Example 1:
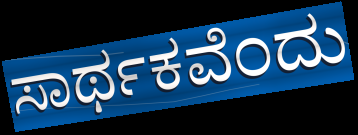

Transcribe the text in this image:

ಸಾರ್ಥಕವೆಂದು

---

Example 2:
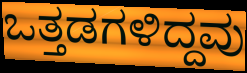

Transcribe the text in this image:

ಒತ್ತಡಗಳಿದ್ದವು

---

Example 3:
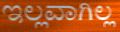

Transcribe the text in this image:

ಇಲ್ಲವಾಗಿಲ್ಲ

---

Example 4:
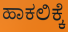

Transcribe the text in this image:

ಹಾಕಲಿಕ್ಕೆ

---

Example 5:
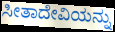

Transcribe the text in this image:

ಸೀತಾದೇವಿಯನ್ನು